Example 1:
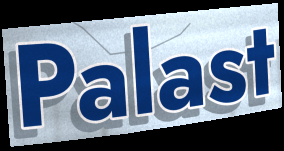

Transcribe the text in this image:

Palast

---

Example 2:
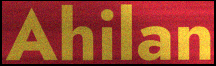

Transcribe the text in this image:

Ahilan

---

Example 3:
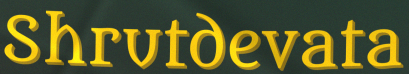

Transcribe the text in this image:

Shrutdevata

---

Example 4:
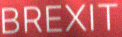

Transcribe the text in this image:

BREXIT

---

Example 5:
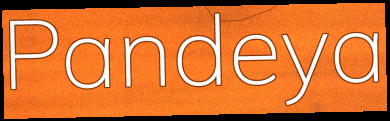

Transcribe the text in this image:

Pandeya